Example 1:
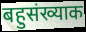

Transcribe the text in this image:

बहुसंख्याक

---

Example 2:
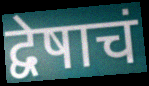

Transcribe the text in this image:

द्वेषाचं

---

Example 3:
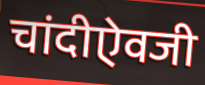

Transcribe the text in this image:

चांदीऐवजी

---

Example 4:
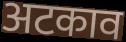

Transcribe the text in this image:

अटकाव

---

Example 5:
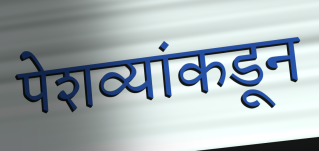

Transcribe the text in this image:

पेशव्यांकडून